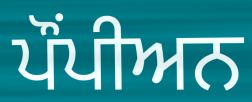
ਪੌਂਪੀਅਨ